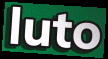
luto